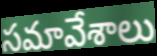
సమావేశాలు